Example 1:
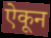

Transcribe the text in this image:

ऐकून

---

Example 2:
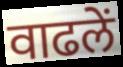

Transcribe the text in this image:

वाढलें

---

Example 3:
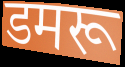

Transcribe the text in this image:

डमरू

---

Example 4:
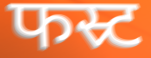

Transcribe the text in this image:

फस्र्ट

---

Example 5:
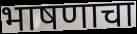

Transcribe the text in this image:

भाषणाचा